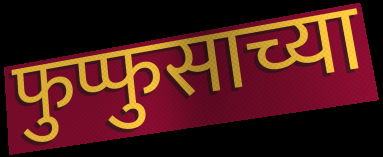
फुप्फुसाच्या